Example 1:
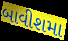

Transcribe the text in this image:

બાવીશમા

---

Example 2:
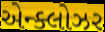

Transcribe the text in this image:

એન્ક્લોઝર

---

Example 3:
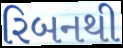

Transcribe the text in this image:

રિબનથી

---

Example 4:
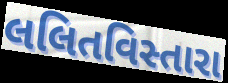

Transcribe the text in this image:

લલિતવિસ્તારા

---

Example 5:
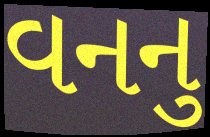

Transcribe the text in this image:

વનનુ